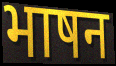
भाषन